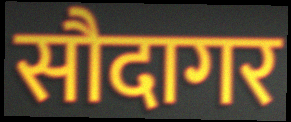
सौदागर